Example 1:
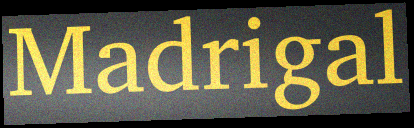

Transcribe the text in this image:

Madrigal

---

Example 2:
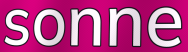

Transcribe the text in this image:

sonne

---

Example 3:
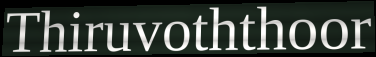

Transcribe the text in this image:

Thiruvoththoor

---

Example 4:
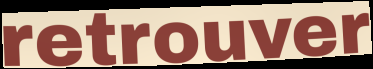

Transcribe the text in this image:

retrouver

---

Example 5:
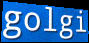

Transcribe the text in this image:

golgi